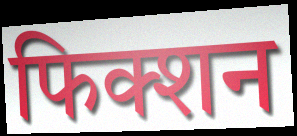
फिक्‍शन